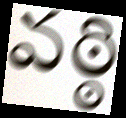
వఠ్ఠి